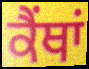
ਕੈਂਥਾਂ